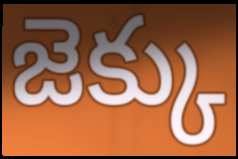
జెక్కు